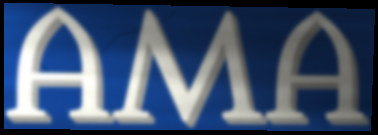
AMA